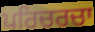
ਪਰਿਚਰਚਾ